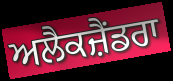
ਅਲੈਕਜ਼ੈਂਡਰਾ